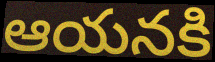
ఆయనకి